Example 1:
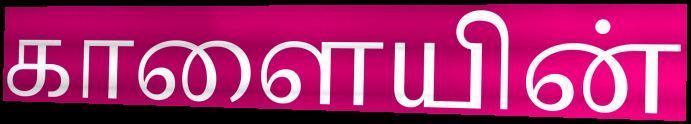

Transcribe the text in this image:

காளையின்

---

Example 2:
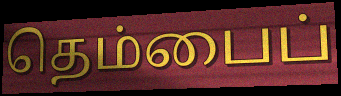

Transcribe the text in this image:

தெம்பைப்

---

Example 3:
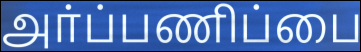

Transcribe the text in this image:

அர்ப்பணிப்பை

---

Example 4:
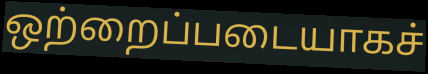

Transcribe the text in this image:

ஒற்றைப்படையாகச்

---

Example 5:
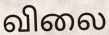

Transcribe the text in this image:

விலை